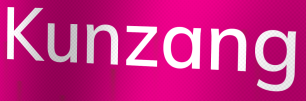
Kunzang